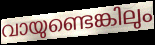
വായുണ്ടെങ്കിലും